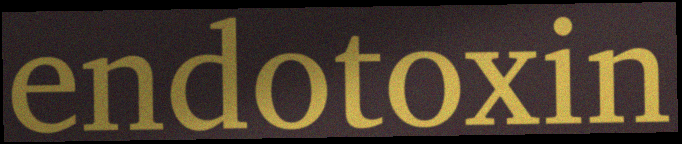
endotoxin